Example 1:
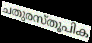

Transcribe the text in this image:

ചതുരസ്തൂപിക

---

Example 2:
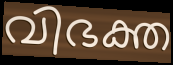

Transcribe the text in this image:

വിഭക്ത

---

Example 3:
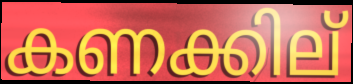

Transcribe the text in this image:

കണക്കില്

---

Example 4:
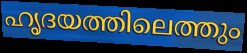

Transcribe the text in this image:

ഹൃദയത്തിലെത്തും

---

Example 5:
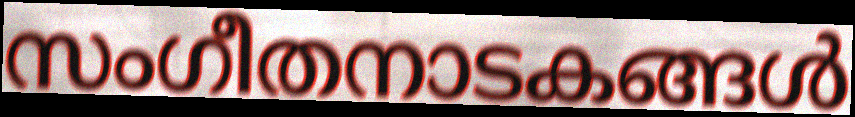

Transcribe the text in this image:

സംഗീതനാടകങ്ങൾ